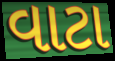
વાટા